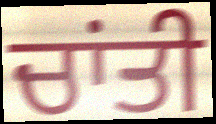
ਚਾਂਤੀ